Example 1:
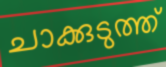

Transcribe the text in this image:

ചാക്കുടുത്ത്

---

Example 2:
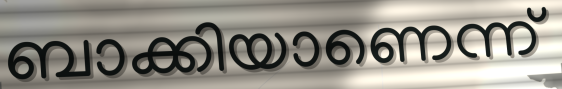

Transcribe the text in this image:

ബാക്കിയാണെന്ന്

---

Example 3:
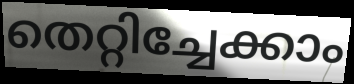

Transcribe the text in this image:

തെറ്റിച്ചേക്കാം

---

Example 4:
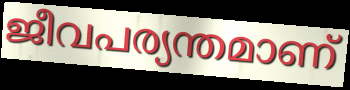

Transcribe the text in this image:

ജീവപര്യന്തമാണ്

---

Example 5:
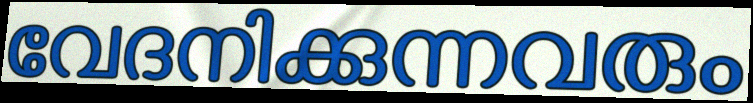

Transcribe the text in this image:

വേദനിക്കുന്നവരും